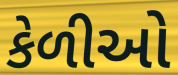
કેળીઓ